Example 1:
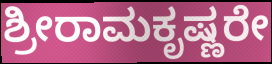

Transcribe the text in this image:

ಶ್ರೀರಾಮಕೃಷ್ಣರೇ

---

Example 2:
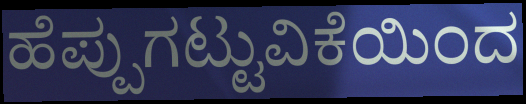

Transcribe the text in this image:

ಹೆಪ್ಪುಗಟ್ಟುವಿಕೆಯಿಂದ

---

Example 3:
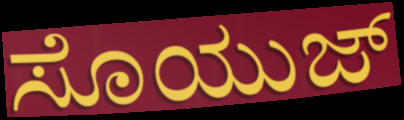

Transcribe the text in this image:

ಸೊಯುಜ್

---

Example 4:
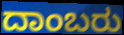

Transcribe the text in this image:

ದಾಂಬರು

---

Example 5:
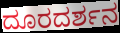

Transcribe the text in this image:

ದೂರದರ್ಶನ